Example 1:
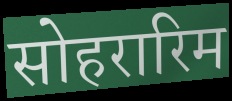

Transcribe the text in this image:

सोहरारिम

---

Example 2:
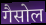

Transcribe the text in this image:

गैसोल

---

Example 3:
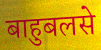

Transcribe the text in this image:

बाहुबलसे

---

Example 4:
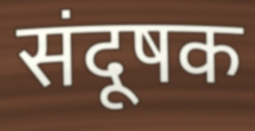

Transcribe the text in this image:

संदूषक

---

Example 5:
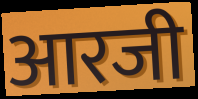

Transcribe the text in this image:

आरजी